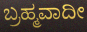
ಬ್ರಹ್ಮವಾದೀ